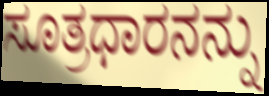
ಸೂತ್ರಧಾರನನ್ನು